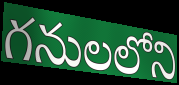
గనులలోని